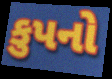
કુપનો